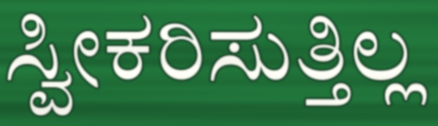
ಸ್ವೀಕರಿಸುತ್ತಿಲ್ಲ